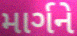
માર્ગને